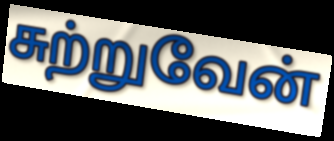
சுற்றுவேன்